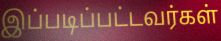
இப்படிப்பட்டவர்கள்